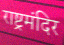
राष्ट्रमंदिर